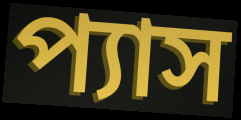
প্যাস